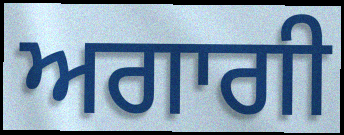
ਅਗਾਗੀ